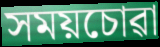
সময়চোৱা